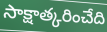
సాక్షాత్కరించేది